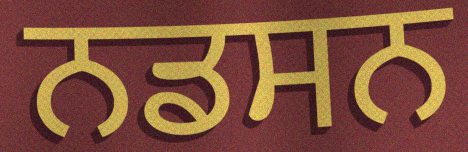
ਨਡਸਨ